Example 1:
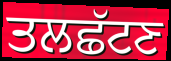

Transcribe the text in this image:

ਤਲਛੱਟਣ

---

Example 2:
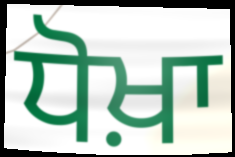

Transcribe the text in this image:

ਧੋਖ਼ਾ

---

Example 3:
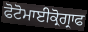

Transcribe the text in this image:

ਫੋਟੋਮਾਈਕ੍ਰੋਗ੍ਰਾਫ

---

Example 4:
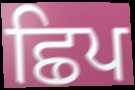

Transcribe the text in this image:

ਛਿਪ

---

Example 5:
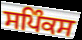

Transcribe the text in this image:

ਸਪਿੰਕਸ